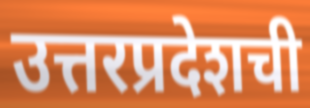
उत्तरप्रदेशची